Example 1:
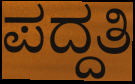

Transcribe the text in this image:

ಪದ್ದತಿ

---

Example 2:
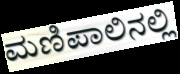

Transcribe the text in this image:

ಮಣಿಪಾಲಿನಲ್ಲಿ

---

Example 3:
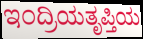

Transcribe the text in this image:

ಇಂದ್ರಿಯತೃಪ್ತಿಯ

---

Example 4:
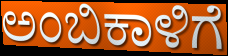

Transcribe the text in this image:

ಅಂಬಿಕಾಳಿಗೆ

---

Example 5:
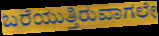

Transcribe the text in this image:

ಬರೆಯುತ್ತಿರುವಾಗಲೇ